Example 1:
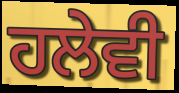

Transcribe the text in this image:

ਹਲੇਵੀ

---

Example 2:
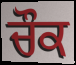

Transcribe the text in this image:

ਚੌਕ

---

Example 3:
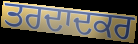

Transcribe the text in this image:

ਤਰਦਾਦਕਰ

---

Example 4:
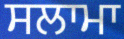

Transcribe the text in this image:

ਸਲਾਮਾ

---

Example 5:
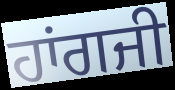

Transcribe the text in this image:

ਹਾਂਗਜੀ